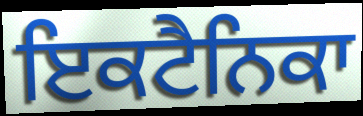
ਇਕਟੈਨਿਕਾ